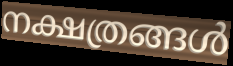
നക്ഷത്രങ്ങൾ